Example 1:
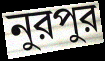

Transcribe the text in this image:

নুরপুর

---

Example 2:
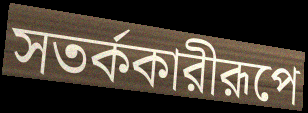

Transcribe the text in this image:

সতর্ককারীরূপে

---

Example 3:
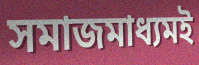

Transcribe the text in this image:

সমাজমাধ্যমই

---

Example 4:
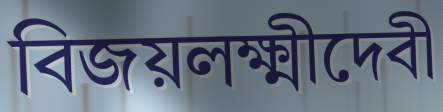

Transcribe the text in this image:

বিজয়লক্ষ্মীদেবী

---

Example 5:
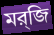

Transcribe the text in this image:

মর্‌জি